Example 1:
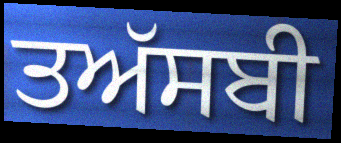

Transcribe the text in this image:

ਤਅੱਸਬੀ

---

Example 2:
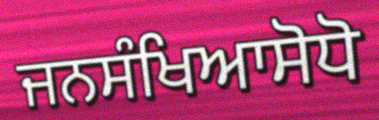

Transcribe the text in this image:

ਜਨਸੰਖਿਆਸੋਧੋ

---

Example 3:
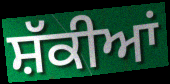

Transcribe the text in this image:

ਸ਼ੱਕੀਆਂ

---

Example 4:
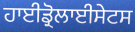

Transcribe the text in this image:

ਹਾਈਡ੍ਰੋਲਾਈਸੇਟਸ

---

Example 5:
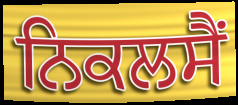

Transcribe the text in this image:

ਨਿਕਲਸੈਂ